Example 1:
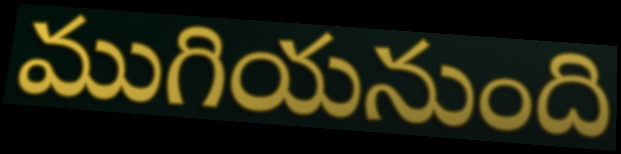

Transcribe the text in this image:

ముగియనుంది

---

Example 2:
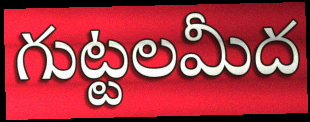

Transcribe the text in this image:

గుట్టలమీద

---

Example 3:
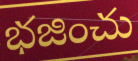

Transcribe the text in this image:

భజించు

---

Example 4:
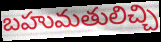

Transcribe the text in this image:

బహుమతులిచ్చి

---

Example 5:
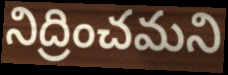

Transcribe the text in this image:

నిద్రించమని